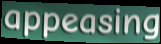
appeasing